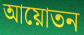
আয়োতন